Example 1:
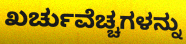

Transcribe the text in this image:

ಖರ್ಚುವೆಚ್ಚಗಳನ್ನು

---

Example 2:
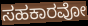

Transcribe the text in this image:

ಸಹಕಾರವೋ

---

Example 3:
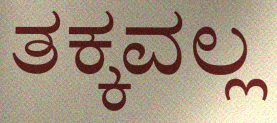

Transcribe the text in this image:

ತಕ್ಕವಲ್ಲ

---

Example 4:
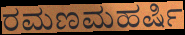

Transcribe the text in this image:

ರಮಣಮಹರ್ಷಿ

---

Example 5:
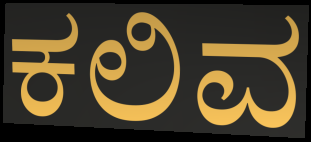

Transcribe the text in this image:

ಕಲಿವ